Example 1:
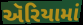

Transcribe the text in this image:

ઍરિયામાં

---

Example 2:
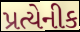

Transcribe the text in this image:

પ્રત્યેનીક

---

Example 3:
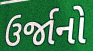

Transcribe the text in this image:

ઉર્જાનો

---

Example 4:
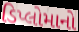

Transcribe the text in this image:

ડિપ્લોમાનો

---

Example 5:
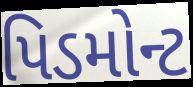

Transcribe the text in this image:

પિડમોન્ટ